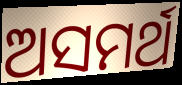
ଅସମର୍ଥ